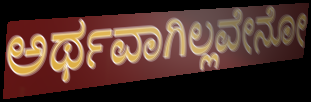
ಅರ್ಥವಾಗಿಲ್ಲವೇನೋ